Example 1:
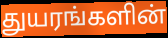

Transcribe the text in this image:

துயரங்களின்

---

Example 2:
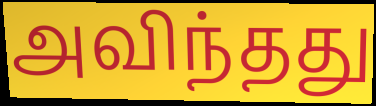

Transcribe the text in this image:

அவிந்தது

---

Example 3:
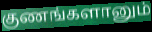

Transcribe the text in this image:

குணங்களானும்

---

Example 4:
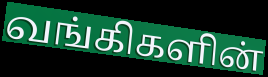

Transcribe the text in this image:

வங்கிகளின்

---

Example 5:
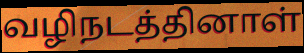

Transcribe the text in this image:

வழிநடத்தினாள்